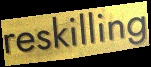
reskilling